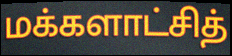
மக்களாட்சித்